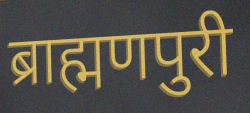
ब्राह्मणपुरी